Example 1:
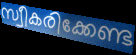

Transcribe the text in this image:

സ്വീകരിക്കേണ്ട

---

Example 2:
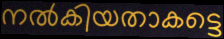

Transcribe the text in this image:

നൽകിയതാകട്ടെ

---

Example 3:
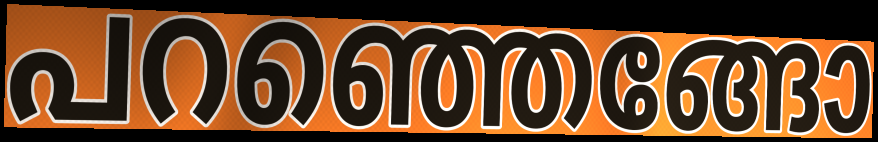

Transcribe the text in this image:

പറഞ്ഞെങ്ങോ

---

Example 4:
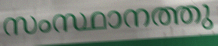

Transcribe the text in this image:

സംസ്ഥാനത്തു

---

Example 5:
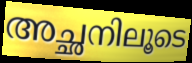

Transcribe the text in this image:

അച്ഛനിലൂടെ